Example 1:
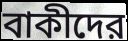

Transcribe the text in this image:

বাকীদের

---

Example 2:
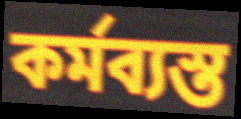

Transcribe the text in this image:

কর্মব্যস্ত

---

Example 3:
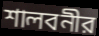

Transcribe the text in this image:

শালবনীর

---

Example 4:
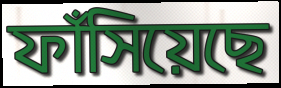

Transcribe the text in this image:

ফাঁসিয়েছে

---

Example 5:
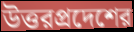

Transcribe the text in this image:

উত্তরপ্রদেশের